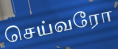
செய்வரோ